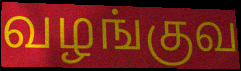
வழங்குவ